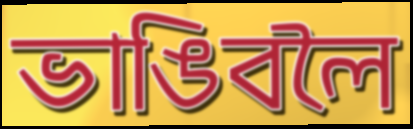
ভাঙিবলৈ